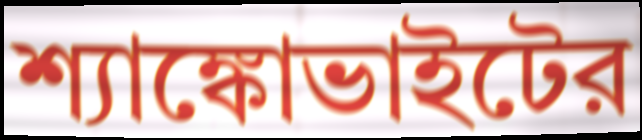
শ্যাঙ্কোভাইটের